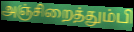
அஞ்சிறைத்தும்பி